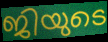
ജിയുടെ